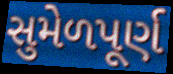
સુમેળપૂર્ણ